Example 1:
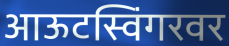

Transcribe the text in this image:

आऊटस्विंगरवर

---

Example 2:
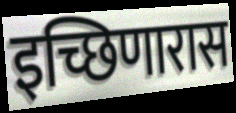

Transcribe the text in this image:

इच्छिणारास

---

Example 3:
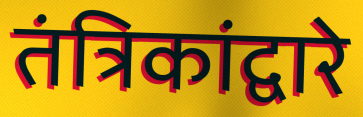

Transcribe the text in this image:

तंत्रिकांद्वारे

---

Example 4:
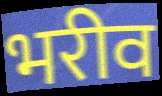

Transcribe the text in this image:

भरीव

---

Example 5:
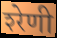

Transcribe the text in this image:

श्रेणी